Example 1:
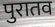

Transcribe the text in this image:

पुरातव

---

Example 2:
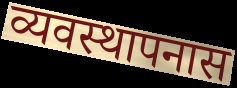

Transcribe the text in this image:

व्यवस्थापनास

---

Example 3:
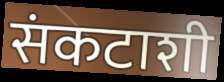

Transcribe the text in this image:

संकटाशी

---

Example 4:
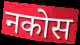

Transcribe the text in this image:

नकोस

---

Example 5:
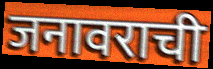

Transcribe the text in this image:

जनावराची